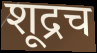
शूद्रच